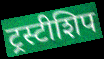
ट्रस्टीशिप